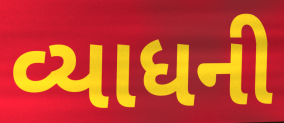
વ્યાધની